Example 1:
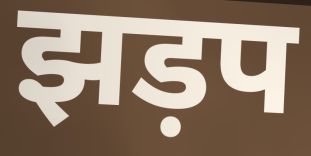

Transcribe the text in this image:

झड़प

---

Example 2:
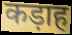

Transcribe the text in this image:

कड़ाह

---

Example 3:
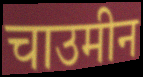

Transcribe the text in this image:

चाउमीन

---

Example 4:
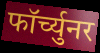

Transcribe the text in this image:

फॉर्च्युनर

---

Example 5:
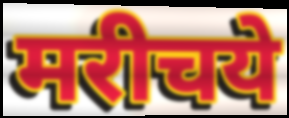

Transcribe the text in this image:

मरीचये